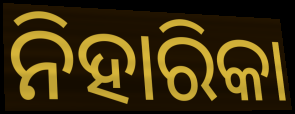
ନିହାରିକା